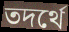
তদর্থে